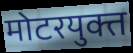
मोटरयुक्त